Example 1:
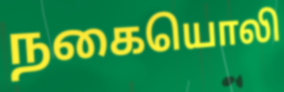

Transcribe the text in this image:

நகையொலி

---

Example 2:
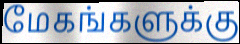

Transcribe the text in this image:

மேகங்களுக்கு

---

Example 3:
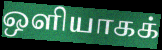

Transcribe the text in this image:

ஒளியாகக்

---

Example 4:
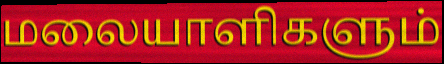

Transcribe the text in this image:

மலையாளிகளும்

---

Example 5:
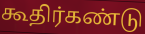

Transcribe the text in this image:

கூதிர்கண்டு